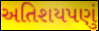
અતિશયપણું